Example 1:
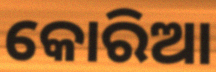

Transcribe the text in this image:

କୋରିଆ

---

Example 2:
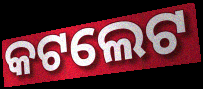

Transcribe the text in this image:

କଟଲେଟ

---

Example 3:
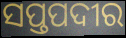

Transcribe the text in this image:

ସପ୍ତପଦୀର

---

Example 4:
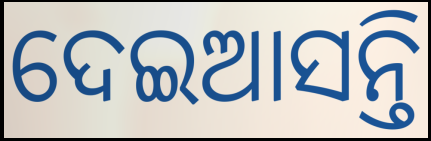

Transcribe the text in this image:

ଦେଇଆସନ୍ତି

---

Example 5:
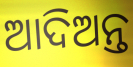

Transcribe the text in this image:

ଆଦିଅନ୍ତ